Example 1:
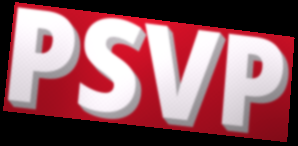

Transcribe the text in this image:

PSVP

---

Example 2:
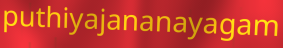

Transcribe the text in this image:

puthiyajananayagam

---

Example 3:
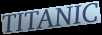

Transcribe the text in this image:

TITANIC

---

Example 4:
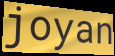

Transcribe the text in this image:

joyan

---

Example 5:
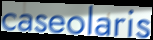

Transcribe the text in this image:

caseolaris